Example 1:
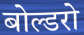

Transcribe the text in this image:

बोल्डरो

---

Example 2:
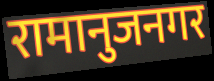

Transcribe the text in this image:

रामानुजनगर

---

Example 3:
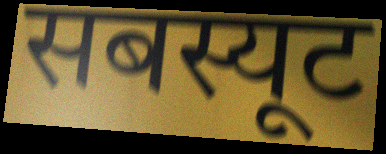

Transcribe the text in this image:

सबस्यूट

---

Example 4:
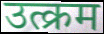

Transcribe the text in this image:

उत्क्रम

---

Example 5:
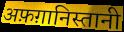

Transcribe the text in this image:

अफ़ग़ानिस्तानी